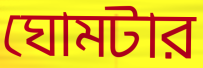
ঘোমটার